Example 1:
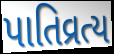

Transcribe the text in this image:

પાતિવ્રત્ય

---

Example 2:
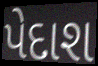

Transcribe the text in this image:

પેદાશ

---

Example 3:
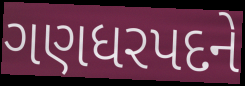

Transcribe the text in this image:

ગણધરપદને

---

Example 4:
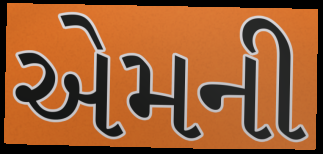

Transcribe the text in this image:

એમની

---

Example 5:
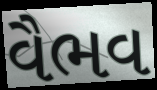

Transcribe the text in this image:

વૈભવ